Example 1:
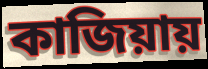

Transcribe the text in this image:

কাজিয়ায়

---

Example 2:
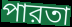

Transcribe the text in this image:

পারতা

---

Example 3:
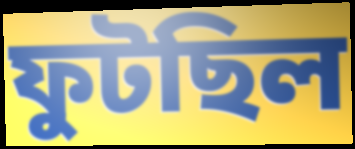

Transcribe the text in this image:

ফুটছিল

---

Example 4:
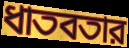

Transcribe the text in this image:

ধাতবতার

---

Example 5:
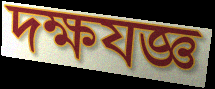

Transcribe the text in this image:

দক্ষযজ্ঞ